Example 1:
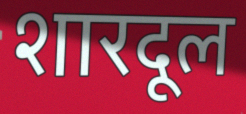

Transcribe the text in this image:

शारदूल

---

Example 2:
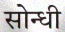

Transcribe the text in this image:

सोन्धी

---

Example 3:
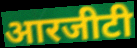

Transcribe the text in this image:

आरजीटी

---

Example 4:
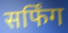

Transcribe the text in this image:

सर्फिंग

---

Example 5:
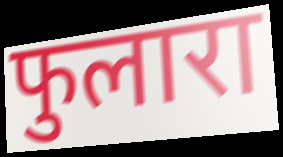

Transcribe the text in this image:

फुलारा